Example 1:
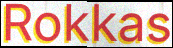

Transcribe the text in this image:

Rokkas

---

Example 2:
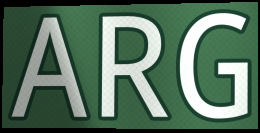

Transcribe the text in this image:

ARG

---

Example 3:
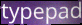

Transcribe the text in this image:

typepad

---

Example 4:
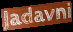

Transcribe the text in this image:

Jadavni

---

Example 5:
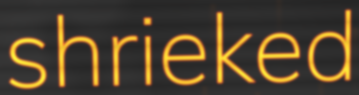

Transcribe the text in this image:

shrieked